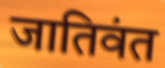
जातिवंत